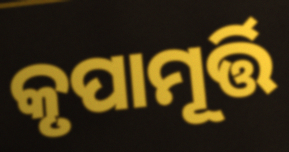
କୃପାମୂର୍ତ୍ତି